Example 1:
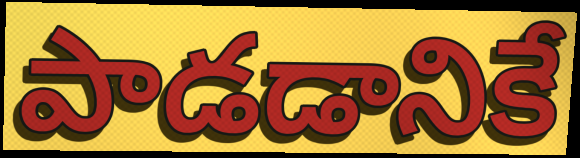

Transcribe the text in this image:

పాడడానికే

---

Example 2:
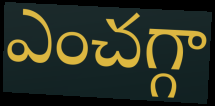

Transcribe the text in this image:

ఎంచగ్గా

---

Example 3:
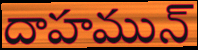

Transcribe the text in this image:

దాహమున్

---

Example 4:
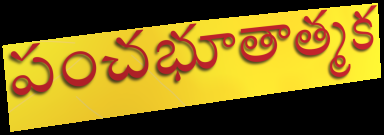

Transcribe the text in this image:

పంచభూతాత్మక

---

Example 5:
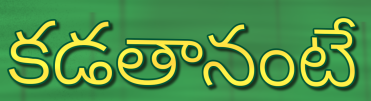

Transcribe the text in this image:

కడతానంటే